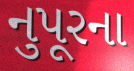
નુપૂરના